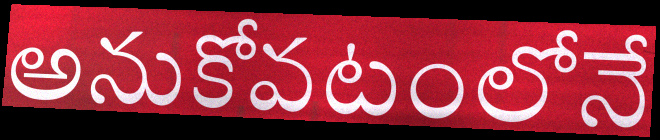
అనుకోవటంలోనే